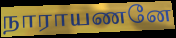
நாராயணனே